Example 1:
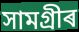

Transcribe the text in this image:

সামগ্ৰীৰ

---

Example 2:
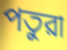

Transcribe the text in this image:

পতুৱা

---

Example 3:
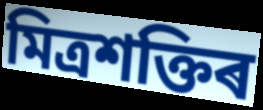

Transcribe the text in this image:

মিত্ৰশক্তিৰ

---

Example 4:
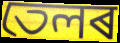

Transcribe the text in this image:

তেলৰ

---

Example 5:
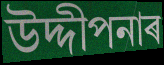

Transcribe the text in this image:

উদ্দীপনাৰ